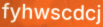
fyhwscdcj